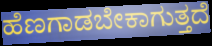
ಹೆಣಗಾಡಬೇಕಾಗುತ್ತದೆ